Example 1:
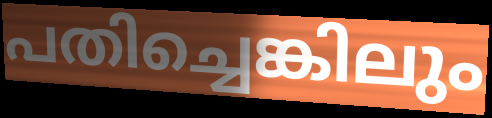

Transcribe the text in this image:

പതിച്ചെങ്കിലും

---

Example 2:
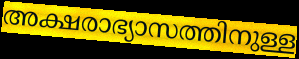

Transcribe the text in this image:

അക്ഷരാഭ്യാസത്തിനുള്ള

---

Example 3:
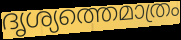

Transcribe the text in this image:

ദൃശ്യത്തെമാത്രം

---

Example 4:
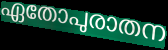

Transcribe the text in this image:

ഏതോപുരാതന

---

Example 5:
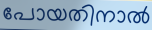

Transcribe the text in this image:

പോയതിനാൽ